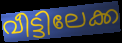
വീട്ടിലേക്ക